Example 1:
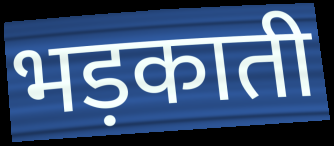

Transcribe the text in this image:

भड़काती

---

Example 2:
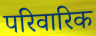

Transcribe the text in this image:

परिवारिक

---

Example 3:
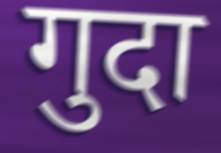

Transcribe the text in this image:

गुदा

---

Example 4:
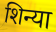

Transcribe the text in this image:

शिन्या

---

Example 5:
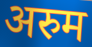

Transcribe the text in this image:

अरुम